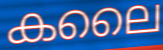
കലൈ